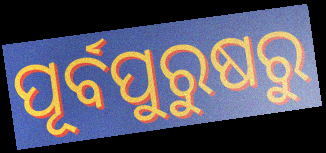
ପୂର୍ବପୁରୁଷରୁ